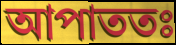
আপাততঃ